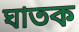
ঘাতক